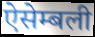
ऐसेम्बली